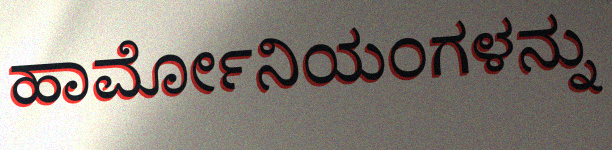
ಹಾರ್ಮೋನಿಯಂಗಳನ್ನು